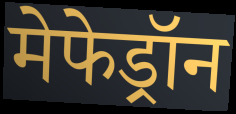
मेफेड्रॉन